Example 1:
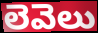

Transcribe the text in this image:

లెవెలు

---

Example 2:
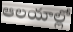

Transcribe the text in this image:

ఆలయాల్లో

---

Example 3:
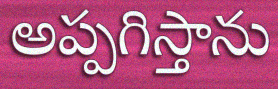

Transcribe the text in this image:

అప్పగిస్తాను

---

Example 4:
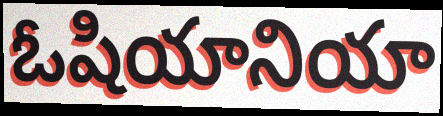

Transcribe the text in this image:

ఓషియానియా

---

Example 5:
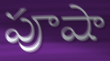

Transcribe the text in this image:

పూషా